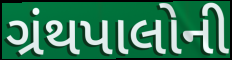
ગ્રંથપાલોની